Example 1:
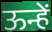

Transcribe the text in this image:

ऊन्हें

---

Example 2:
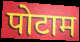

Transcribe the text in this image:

पोटाम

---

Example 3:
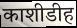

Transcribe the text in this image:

काशीडीह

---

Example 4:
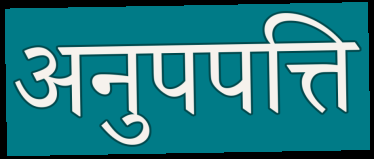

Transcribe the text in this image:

अनुपपत्ति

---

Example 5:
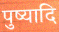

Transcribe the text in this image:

पुष्यादि